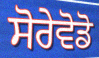
ਸੋਰੇਵੋਡੋ